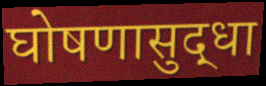
घोषणासुद्धा